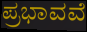
ಪ್ರಭಾವವೆ